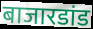
बाजारडांड